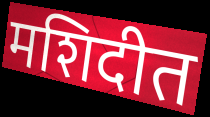
मशिदीत